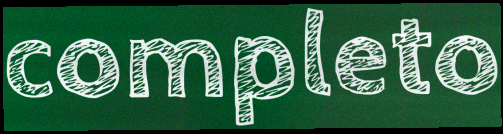
completo